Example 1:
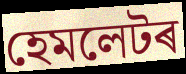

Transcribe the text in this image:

হেমলেটৰ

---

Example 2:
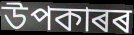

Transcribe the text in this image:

উপকাৰৰ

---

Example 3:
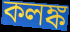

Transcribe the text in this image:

কলঙ্ক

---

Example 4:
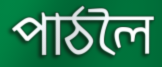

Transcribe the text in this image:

পাঠলৈ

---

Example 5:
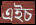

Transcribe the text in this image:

এইচ